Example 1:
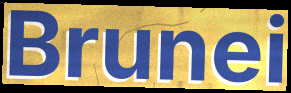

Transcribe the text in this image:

Brunei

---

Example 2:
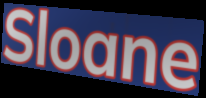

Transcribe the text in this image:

Sloane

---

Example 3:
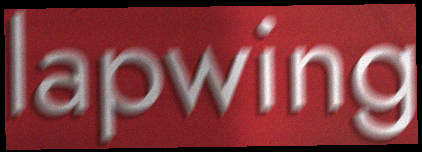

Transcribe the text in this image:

lapwing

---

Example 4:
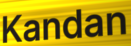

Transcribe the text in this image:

Kandan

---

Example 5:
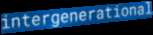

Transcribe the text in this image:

intergenerational